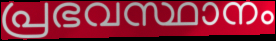
പ്രഭവസ്ഥാനം